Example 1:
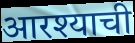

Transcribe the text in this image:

आरश्याची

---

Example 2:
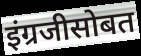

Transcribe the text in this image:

इंग्रजीसोबत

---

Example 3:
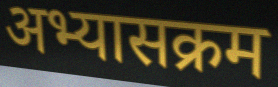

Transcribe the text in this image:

अभ्यासक्रम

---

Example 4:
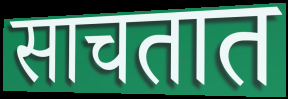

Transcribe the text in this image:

साचतात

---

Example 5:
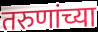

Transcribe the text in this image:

तरुणांच्या